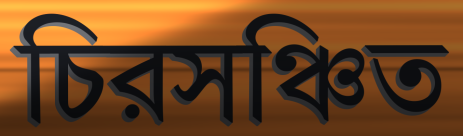
চিরসঞ্চিত